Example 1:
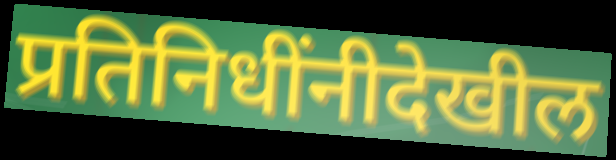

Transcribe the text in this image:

प्रतिनिधींनीदेखील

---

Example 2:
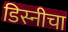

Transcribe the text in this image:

डिस्नीचा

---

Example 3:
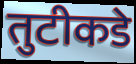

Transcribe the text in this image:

तुटीकडे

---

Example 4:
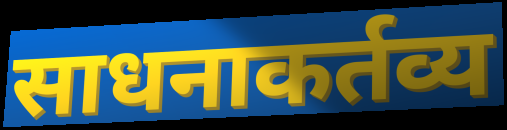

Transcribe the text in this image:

साधनाकर्तव्य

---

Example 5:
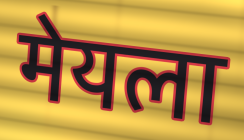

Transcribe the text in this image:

मेयला